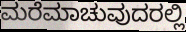
ಮರೆಮಾಚುವುದರಲ್ಲಿ